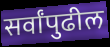
सर्वांपुढील